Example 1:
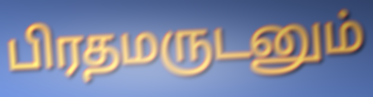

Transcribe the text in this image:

பிரதமருடனும்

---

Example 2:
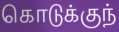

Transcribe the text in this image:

கொடுக்குந்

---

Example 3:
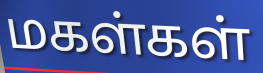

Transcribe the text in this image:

மகள்கள்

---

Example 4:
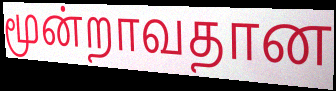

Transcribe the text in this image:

மூன்றாவதான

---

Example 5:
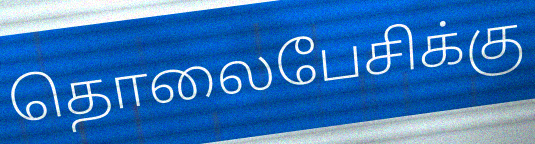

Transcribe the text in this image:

தொலைபேசிக்கு